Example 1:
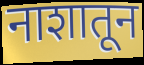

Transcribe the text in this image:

नाशातून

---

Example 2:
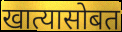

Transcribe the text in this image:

खात्यासोबत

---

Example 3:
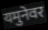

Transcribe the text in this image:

यमुनेवर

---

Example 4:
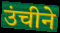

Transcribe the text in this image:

उंचीने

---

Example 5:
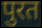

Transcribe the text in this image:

पुरत